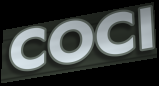
COCI